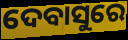
ଦେବାସୁରେ